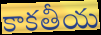
కాకతీయ